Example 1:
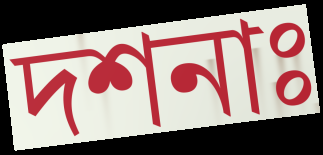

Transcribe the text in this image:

দশনাঃ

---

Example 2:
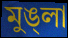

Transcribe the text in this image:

মুঙ্লা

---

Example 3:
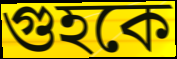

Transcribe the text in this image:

গুহকে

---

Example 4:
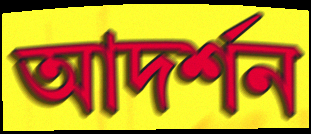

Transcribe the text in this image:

আদর্শন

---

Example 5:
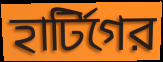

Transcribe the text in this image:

হার্টিগের